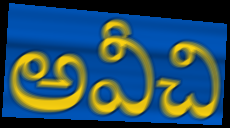
అవీచి